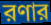
রণার